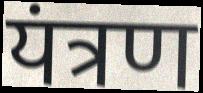
यंत्रण